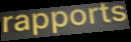
rapports